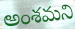
అంశమని